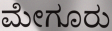
ಮೇಗೂರು